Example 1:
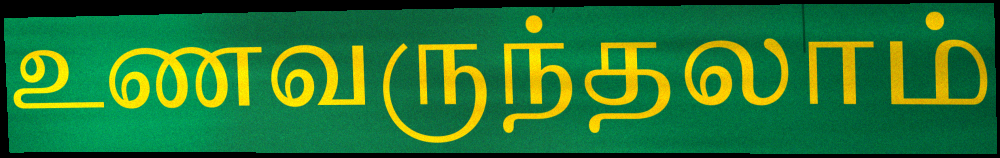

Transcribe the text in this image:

உணவருந்தலாம்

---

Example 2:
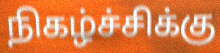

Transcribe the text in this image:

நிகழ்ச்சிக்கு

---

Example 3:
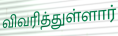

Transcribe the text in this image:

விவரித்துள்ளார்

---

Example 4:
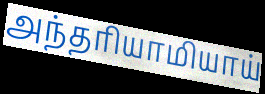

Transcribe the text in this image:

அந்தரியாமியாய்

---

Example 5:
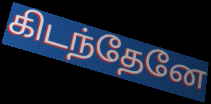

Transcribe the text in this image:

கிடந்தேனே